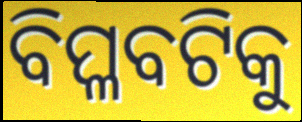
ବିପ୍ଳବଟିକୁ